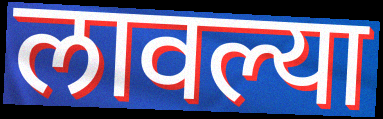
लावल्या